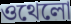
ওথেলো